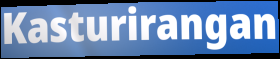
Kasturirangan